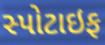
સ્પોટાઇફ